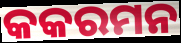
କକରମନ